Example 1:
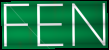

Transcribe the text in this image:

FEN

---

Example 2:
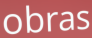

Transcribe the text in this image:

obras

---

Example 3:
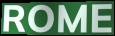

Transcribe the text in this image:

ROME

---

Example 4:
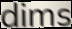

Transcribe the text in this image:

dims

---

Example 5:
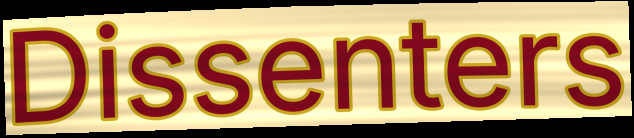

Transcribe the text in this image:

Dissenters